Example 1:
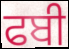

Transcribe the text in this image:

ਫਬੀ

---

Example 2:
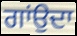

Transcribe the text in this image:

ਗਾਂਉਦਾ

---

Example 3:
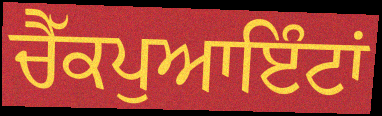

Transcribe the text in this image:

ਚੈੱਕਪੁਆਇੰਟਾਂ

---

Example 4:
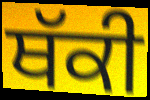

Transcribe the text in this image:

ਥੱਕੀ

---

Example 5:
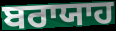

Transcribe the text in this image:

ਬਰਾਯਾਹ